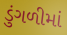
ડુંગળીમાં